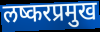
लष्करप्रमुख